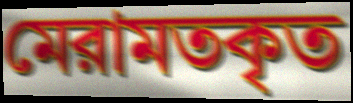
মেরামতকৃত